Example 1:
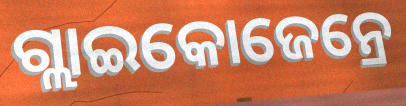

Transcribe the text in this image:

ଗ୍ଲାଇକୋଜେନ୍ରେ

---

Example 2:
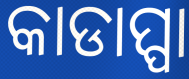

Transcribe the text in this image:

କାଡାପ୍ପା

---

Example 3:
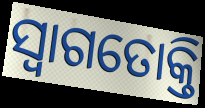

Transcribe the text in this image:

ସ୍ଵାଗତୋକ୍ତି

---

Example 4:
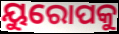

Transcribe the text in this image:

ୟୁରୋପକୁ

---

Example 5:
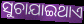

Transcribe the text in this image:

ସୁଚାଯାଇଥାଏ